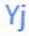
Yj